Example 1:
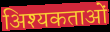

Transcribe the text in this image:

अिश्यकताओं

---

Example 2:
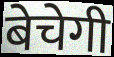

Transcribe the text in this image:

बेचेगी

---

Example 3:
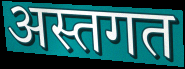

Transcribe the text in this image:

अस्तगत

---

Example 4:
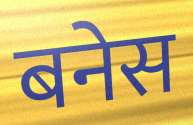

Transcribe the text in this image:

बनेस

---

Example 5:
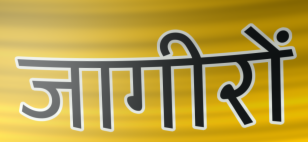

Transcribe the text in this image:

जागीरों